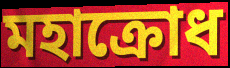
মহাক্রোধ